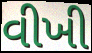
વીખી